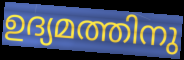
ഉദ്യമത്തിനു